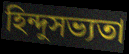
হিন্দুসভ্যতা